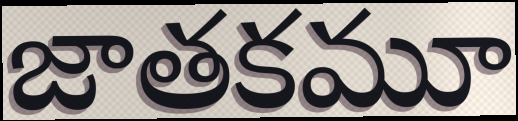
జాతకమూ